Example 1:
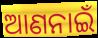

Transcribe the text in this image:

ଆଣନାଇଁ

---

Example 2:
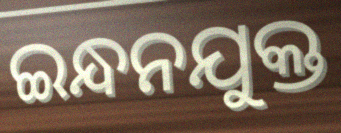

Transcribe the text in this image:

ଇନ୍ଧନଯୁକ୍ତ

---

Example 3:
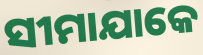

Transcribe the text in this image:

ସୀମାଯାକେ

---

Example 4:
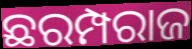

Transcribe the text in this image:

ଛରମ୍ପରାଜ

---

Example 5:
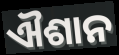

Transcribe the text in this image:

ଐଶାନ